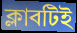
ক্লাবটিই